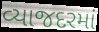
વ્યાજદરમાં